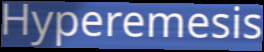
Hyperemesis